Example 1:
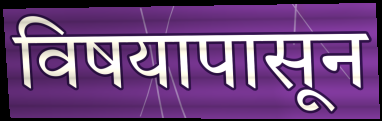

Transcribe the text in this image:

विषयापासून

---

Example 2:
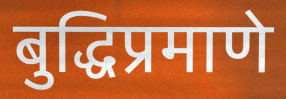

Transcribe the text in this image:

बुद्धिप्रमाणे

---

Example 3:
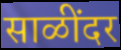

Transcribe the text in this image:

साळींदर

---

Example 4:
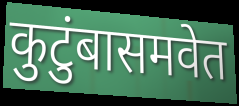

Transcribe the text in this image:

कुटुंबासमवेत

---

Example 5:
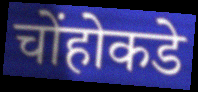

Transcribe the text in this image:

चोंहोकडे